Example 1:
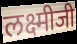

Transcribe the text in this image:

लक्ष्मीजी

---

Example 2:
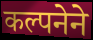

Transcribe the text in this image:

कल्पनेने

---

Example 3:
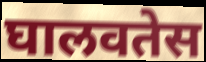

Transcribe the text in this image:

घालवतेस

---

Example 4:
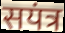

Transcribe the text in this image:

सयंत्र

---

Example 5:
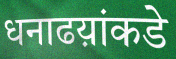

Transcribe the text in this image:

धनाढय़ांकडे